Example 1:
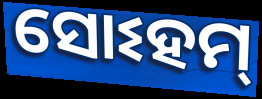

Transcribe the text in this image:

ସୋଽହମ୍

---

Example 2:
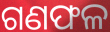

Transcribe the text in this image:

ଗଣଫଳ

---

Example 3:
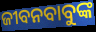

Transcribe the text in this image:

ଜୀବନବାବୁଙ୍କ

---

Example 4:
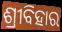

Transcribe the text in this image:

ଶ୍ରୀବିହାର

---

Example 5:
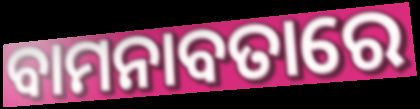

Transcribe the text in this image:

ବାମନାବତାରେ